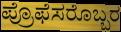
ಪ್ರೊಫೆಸರೊಬ್ಬರ